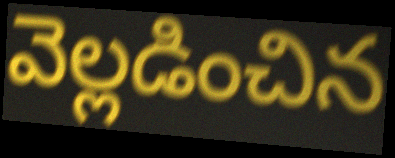
వెల్లడించిన